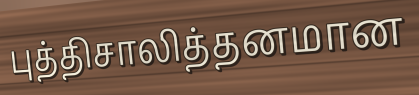
புத்திசாலித்தனமான